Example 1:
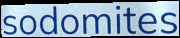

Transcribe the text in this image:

sodomites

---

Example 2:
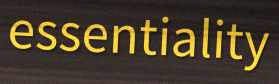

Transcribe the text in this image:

essentiality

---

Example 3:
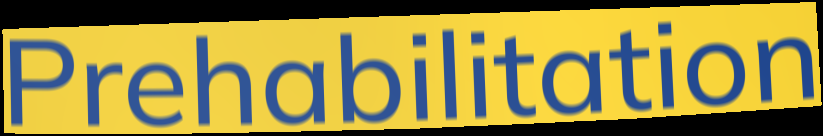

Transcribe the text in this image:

Prehabilitation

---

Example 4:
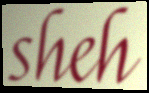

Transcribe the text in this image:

sheh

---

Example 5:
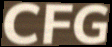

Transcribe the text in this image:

CFG